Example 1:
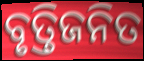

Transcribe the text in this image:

ବୃତ୍ତିଜନିତ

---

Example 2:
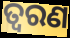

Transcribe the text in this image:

ତ୍ୱରଣ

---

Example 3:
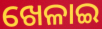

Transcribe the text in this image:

ଖେଳାଇ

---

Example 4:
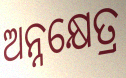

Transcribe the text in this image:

ଅନ୍ନକ୍ଷେତ୍ର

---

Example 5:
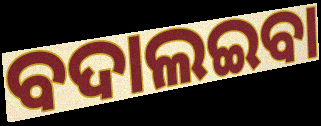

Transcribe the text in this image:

ବଦାଲଇବା